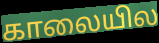
காலையில